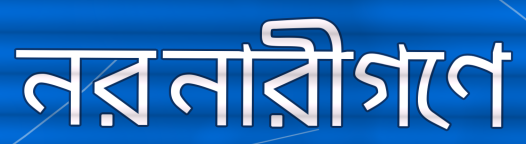
নরনারীগণে